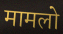
मामलो